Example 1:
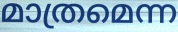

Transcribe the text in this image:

മാത്രമെന്ന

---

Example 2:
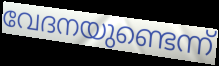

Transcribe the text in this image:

വേദനയുണ്ടെന്ന്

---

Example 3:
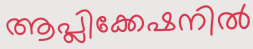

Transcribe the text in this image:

ആപ്ലിക്കേഷനിൽ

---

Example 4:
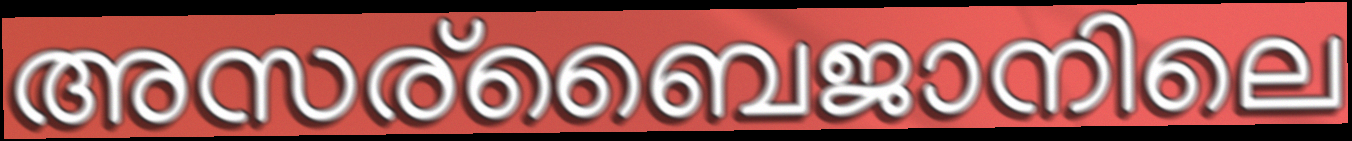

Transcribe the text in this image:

അസര്ബൈജാനിലെ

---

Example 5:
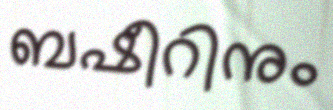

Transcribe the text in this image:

ബഷീറിനും